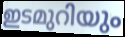
ഇടമുറിയും